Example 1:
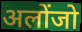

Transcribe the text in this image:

अलोंजो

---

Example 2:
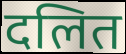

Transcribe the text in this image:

दलित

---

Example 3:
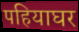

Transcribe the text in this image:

पहियाघर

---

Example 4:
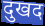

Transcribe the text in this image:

दुखद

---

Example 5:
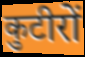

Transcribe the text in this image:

कुटीरों